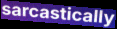
sarcastically